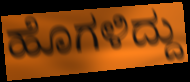
ಹೊಗಳಿದ್ದು